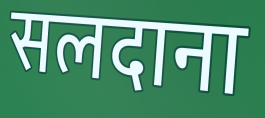
सलदाना